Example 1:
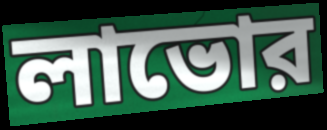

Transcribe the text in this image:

লাভোর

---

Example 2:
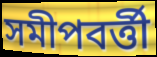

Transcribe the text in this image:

সমীপবর্ত্তী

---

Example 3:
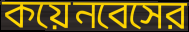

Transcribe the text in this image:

কয়েনবেসের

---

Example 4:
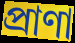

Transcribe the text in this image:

প্রাণা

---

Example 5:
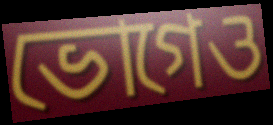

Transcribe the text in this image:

ভোগেও